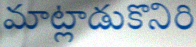
మాట్లాడుకొనిరి